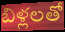
బిళ్లలతో